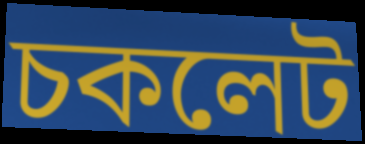
চকলেট